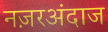
नज़रअंदाज